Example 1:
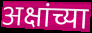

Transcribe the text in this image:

अक्षांच्या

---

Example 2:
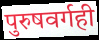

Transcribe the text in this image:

पुरुषवर्गही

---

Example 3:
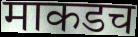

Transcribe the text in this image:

माकडच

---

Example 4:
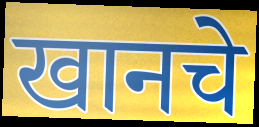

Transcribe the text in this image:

खानचे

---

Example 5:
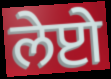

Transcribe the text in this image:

लेप्टो